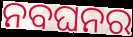
ନବଘନର